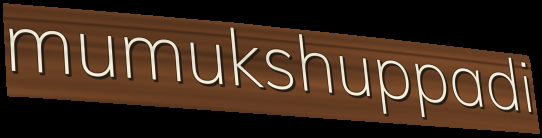
mumukshuppadi